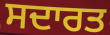
ਸਦਾਰਤ